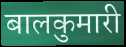
बालकुमारी